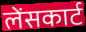
लेंसकार्ट